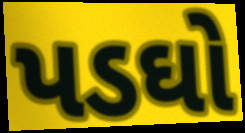
પડઘો